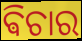
ଵିଚାର